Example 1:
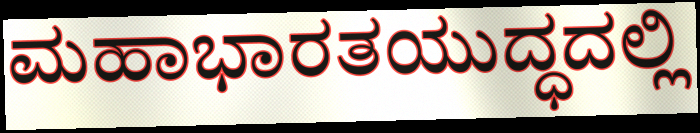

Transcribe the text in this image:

ಮಹಾಭಾರತಯುದ್ಧದಲ್ಲಿ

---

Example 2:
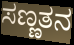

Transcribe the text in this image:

ಸಣ್ಣತನ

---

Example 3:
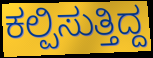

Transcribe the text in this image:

ಕಲ್ಪಿಸುತ್ತಿದ್ದ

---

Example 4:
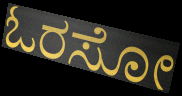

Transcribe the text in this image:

ಓರಸೋ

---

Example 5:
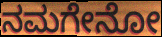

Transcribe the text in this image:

ನಮಗೇನೋ